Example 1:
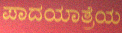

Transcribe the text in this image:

ಪಾದಯಾತ್ರೆಯ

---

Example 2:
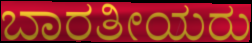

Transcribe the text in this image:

ಬಾರತೀಯರು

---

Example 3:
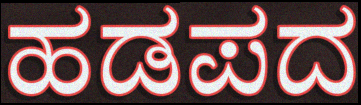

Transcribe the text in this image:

ಹಡಪದ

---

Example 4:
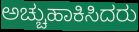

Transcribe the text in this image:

ಅಚ್ಚುಹಾಕಿಸಿದರು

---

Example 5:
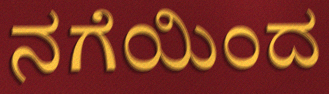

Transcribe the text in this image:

ನಗೆಯಿಂದ